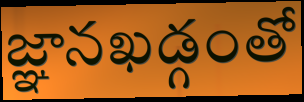
జ్ఞానఖడ్గంతో